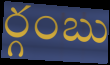
ర్గంబు